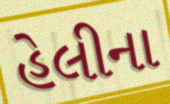
હેલીના